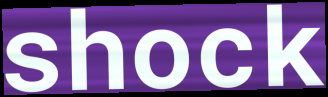
shock